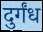
दुर्गंध